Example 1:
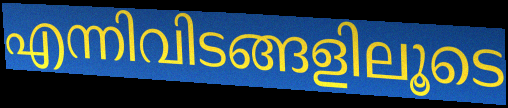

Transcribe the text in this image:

എന്നിവിടങ്ങളിലൂടെ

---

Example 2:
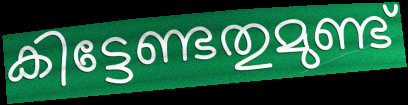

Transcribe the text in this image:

കിട്ടേണ്ടതുമുണ്ട്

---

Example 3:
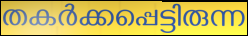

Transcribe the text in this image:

തകർക്കപ്പെട്ടിരുന്ന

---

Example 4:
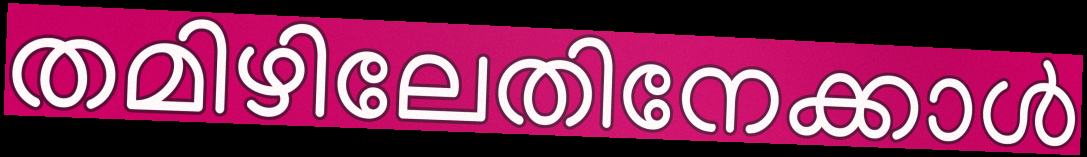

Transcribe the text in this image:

തമിഴിലേതിനേക്കാൾ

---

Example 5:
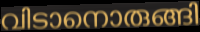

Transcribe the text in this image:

വിടാനൊരുങ്ങി